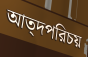
আত্দপরিচয়